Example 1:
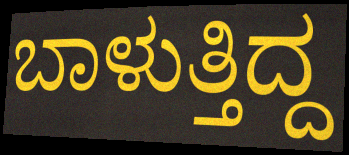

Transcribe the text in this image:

ಬಾಳುತ್ತಿದ್ದ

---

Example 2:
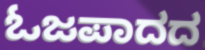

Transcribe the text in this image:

ಓಜಪಾದದ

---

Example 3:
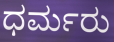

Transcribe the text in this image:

ಧರ್ಮರು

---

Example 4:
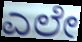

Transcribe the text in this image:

ಎಲೇ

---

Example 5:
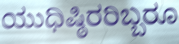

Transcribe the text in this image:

ಯುಧಿಷ್ಠಿರರಿಬ್ಬರೂ